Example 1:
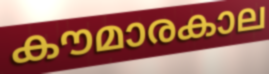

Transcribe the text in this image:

കൗമാരകാല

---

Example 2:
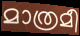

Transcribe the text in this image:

മാത്രമീ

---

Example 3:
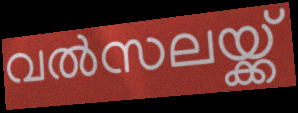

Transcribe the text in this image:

വൽസലയ്ക്ക്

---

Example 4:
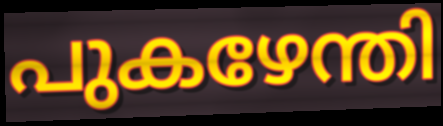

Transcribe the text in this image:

പുകഴേന്തി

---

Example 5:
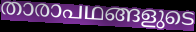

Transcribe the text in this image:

താരാപഥങ്ങളുടെ